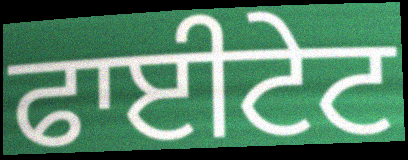
ਫਾਈਟੇਟ